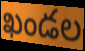
ఖండల